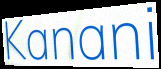
Kanani